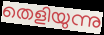
തെളിയുന്നു